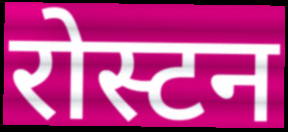
रोस्टन